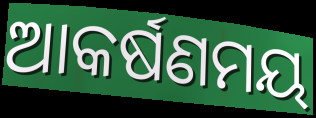
ଆକର୍ଷଣମୟ